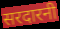
सरदारनी